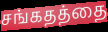
சங்கதத்தை